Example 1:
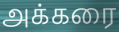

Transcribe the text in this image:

அக்கரை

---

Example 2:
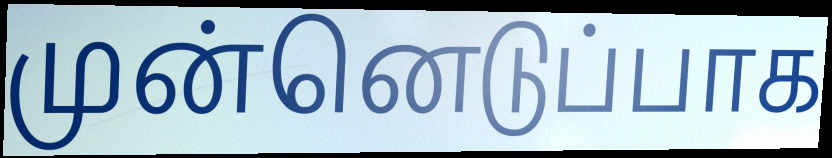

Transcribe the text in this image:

முன்னெடுப்பாக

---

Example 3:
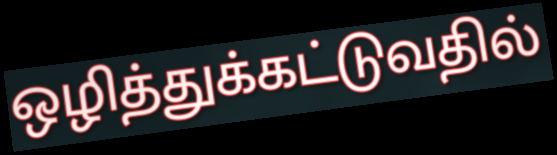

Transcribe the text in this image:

ஒழித்துக்கட்டுவதில்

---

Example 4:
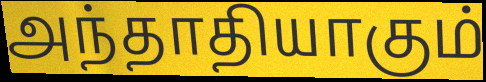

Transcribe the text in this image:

அந்தாதியாகும்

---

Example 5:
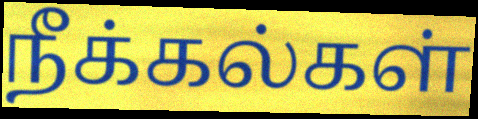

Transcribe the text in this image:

நீக்கல்கள்